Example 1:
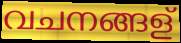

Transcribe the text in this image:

വചനങ്ങള്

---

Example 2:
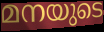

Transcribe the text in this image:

മനയുടെ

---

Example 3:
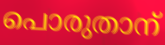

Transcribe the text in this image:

പൊരുതാന്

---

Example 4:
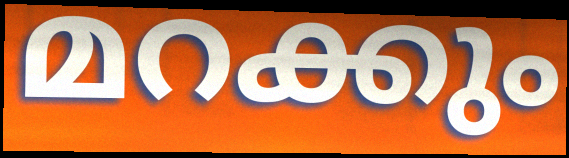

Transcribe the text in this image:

മറക്കും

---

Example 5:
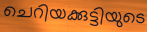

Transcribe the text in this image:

ചെറിയക്കുട്ടിയുടെ